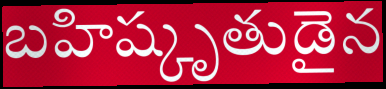
బహిష్కృతుడైన